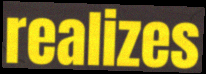
realizes